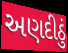
અણદીઠું